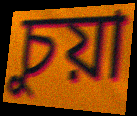
চুয়া